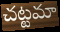
చట్టమా